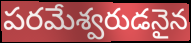
పరమేశ్వరుడనైన